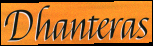
Dhanteras